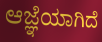
ಆಜ್ಞೆಯಾಗಿದೆ